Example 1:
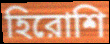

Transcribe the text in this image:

হিরোশি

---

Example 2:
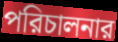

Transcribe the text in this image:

পরিচালনার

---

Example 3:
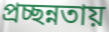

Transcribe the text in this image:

প্রচ্ছন্নতায়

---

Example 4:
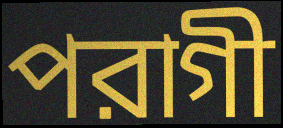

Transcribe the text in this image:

পরাগী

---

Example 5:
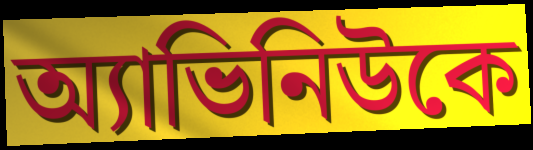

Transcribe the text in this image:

অ্যাভিনিউকে